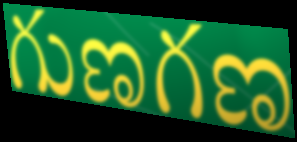
గుణగణ